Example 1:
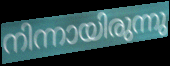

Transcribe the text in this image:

നിന്നായിരുന്നു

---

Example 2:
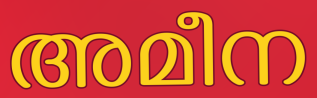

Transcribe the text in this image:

അമീന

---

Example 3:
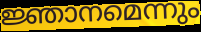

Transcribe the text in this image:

ജ്ഞാനമെന്നും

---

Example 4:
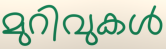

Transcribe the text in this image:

മുറിവുകൾ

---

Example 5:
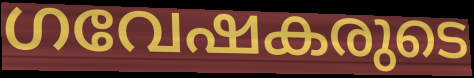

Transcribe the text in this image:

ഗവേഷകരുടെ